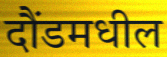
दौंडमधील